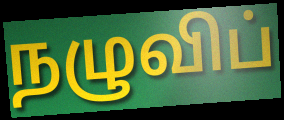
நழுவிப்